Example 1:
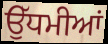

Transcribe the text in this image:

ਉੱਧਮੀਆਂ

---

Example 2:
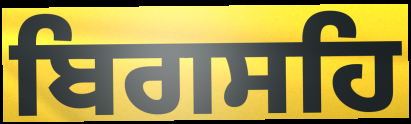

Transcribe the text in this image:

ਬਿਗਸਹਿ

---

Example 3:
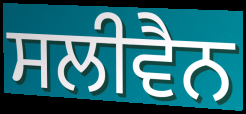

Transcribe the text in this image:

ਸਲੀਵੈਨ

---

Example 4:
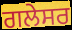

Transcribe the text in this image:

ਗਲੇਸਰ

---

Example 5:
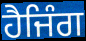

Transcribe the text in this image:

ਹੈਜਿੰਗ